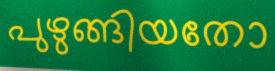
പുഴുങ്ങിയതോ